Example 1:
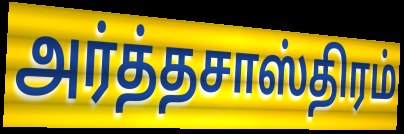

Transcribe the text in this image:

அர்த்தசாஸ்திரம்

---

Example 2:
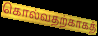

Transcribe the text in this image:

கொல்வதற்காகத்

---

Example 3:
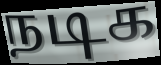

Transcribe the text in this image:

நடிக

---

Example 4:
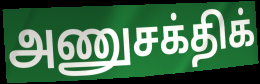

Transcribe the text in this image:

அணுசக்திக்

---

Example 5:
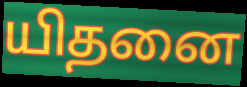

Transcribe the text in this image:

யிதனை